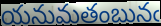
యనుమతంబునఁ